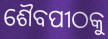
ଶୈବପୀଠକୁ